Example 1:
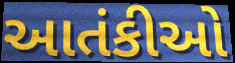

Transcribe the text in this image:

આતંકીઓ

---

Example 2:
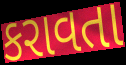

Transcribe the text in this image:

કરાવતા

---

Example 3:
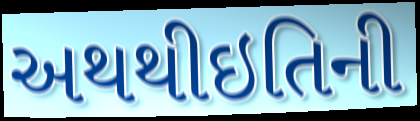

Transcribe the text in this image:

અથથીઇતિની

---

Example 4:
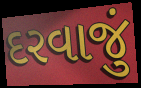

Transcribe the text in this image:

દરવાજું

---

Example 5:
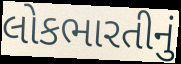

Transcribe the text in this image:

લોકભારતીનું